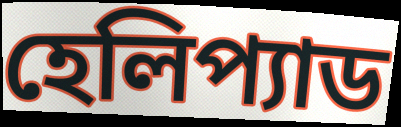
হেলিপ্যাড